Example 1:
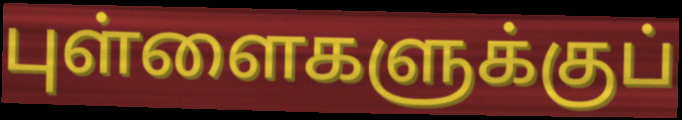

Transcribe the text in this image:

புள்ளைகளுக்குப்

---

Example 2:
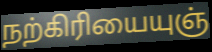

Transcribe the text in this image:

நற்கிரியையுஞ்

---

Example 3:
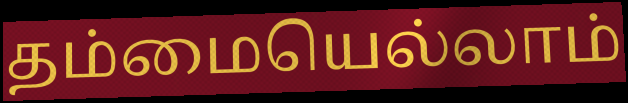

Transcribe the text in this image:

தம்மையெல்லாம்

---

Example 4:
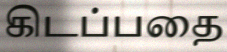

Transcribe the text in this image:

கிடப்பதை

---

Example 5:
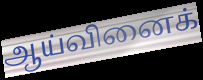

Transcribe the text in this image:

ஆய்வினைக்